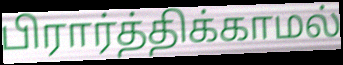
பிரார்த்திக்காமல்